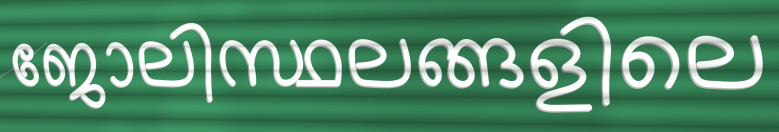
ജോലിസ്ഥലങ്ങളിലെ